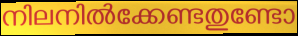
നിലനിൽക്കേണ്ടതുണ്ടോ